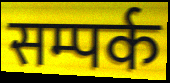
सम्‍पर्क